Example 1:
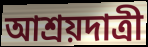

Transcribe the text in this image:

আশ্রয়দাত্রী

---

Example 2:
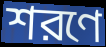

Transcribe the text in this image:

শরণে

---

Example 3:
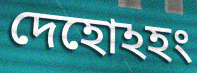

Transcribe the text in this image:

দেহোঽহং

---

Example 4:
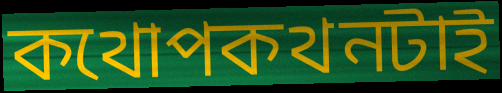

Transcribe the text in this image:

কথোপকথনটাই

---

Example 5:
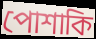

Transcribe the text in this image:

পোশাকি